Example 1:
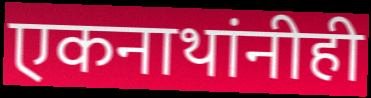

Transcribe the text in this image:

एकनाथांनीही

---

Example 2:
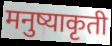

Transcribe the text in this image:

मनुष्याकृती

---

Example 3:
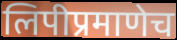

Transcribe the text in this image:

लिपीप्रमाणेच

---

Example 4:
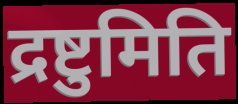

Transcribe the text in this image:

द्रष्टुमिति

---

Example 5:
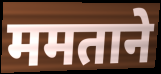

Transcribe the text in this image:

ममताने